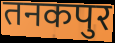
तनकपुर